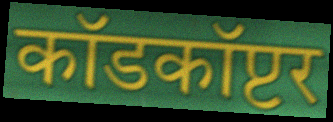
कॉडकॉप्टर